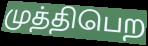
முத்திபெற